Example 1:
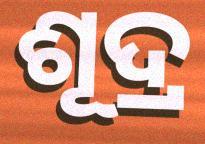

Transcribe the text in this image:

ଶୂଦ୍ର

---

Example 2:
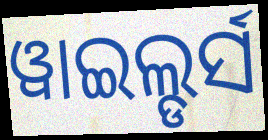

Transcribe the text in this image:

ୱାଇଲ୍ଡର୍ସ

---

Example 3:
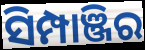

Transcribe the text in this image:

ସିମ୍ପାଞ୍ଜିର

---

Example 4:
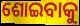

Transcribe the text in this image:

ଶୋଇବାକୁ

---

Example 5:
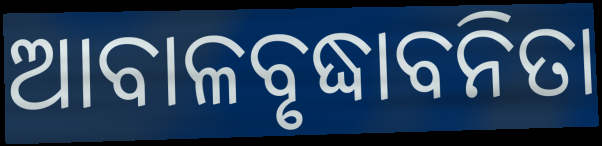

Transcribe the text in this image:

ଆବାଳବୃଦ୍ଧାବନିତା